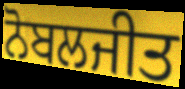
ਨੋਬਲਜੀਤ